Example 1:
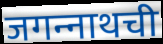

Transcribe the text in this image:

जगन्नाथची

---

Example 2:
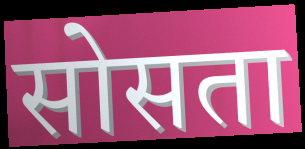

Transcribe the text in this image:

सोसता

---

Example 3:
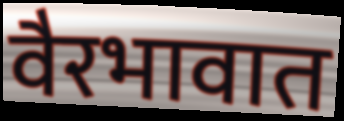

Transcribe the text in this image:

वैरभावात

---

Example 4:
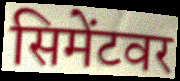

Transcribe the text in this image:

सिमेंटवर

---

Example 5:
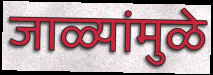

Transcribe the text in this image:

जाळ्यांमुळे